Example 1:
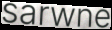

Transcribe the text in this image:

sarwne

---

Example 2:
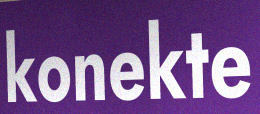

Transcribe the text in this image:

konekte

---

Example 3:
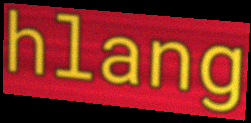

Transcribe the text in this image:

hlang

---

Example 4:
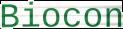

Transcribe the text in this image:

Biocon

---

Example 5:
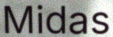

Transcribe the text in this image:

Midas